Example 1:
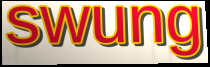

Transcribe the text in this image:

swung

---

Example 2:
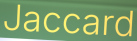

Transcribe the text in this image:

Jaccard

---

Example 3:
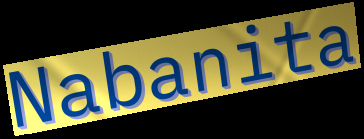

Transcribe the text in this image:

Nabanita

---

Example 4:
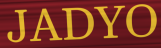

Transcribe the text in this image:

JADYO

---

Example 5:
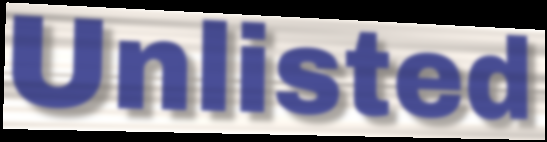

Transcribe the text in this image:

Unlisted